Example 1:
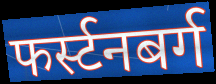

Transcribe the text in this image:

फर्स्टनबर्ग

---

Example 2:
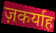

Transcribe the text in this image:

ज़कर्याह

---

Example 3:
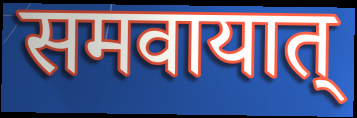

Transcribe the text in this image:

समवायात्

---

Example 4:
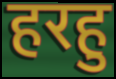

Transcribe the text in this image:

हरहु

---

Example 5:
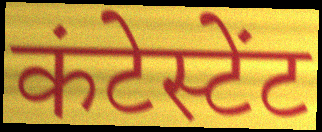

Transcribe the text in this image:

कंटेस्टेंट